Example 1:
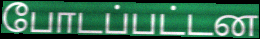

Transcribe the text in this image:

போடப்பட்டன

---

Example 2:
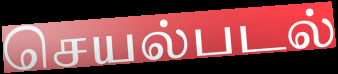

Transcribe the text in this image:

செயல்படல்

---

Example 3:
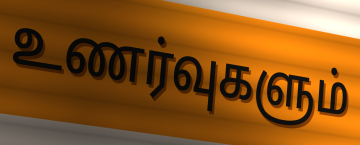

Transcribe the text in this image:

உணர்வுகளும்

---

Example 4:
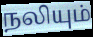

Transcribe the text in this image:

நலியும்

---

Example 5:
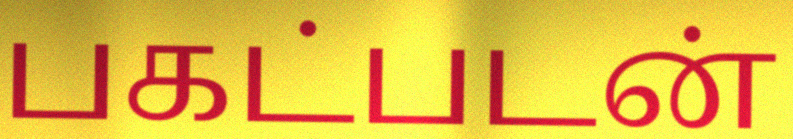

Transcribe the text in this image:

பகட்படன்